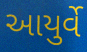
આયુર્વે